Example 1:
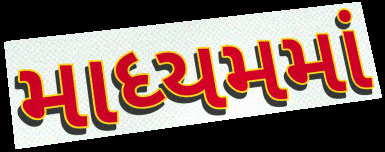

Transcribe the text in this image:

માધ્યમમાં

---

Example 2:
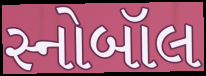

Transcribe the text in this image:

સ્નોબૉલ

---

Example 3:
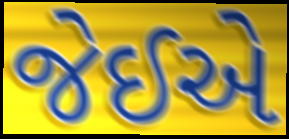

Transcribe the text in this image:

જેઈએ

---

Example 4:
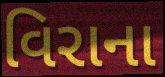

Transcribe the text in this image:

વિરાના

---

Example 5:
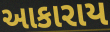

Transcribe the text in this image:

આકારાય